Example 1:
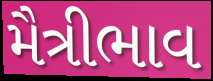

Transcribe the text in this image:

મૈત્રીભાવ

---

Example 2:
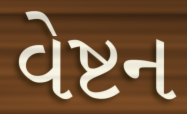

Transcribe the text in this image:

વેષ્ટન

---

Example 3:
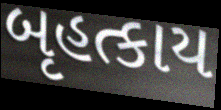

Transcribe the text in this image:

બૃહત્કાય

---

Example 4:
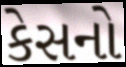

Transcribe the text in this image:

કેસનો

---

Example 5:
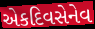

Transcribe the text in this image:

એકદિવસેનેવ